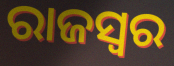
ରାଜସ୍ବର